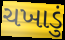
ચખાડું